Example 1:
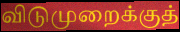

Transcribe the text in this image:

விடுமுறைக்குத்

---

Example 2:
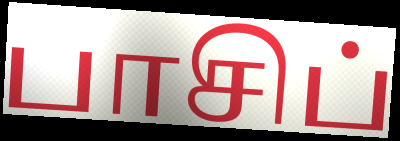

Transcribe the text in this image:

பாசிப்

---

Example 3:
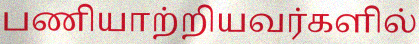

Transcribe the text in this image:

பணியாற்றியவர்களில்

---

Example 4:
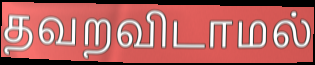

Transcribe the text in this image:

தவறவிடாமல்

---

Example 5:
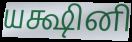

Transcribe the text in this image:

யக்ஷினி